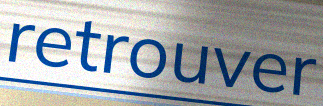
retrouver